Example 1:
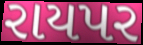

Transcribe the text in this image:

રાયપર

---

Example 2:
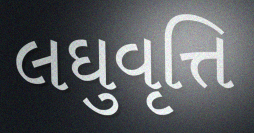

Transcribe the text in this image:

લઘુવૃત્તિ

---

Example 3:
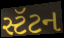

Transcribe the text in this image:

સ્ટૅટન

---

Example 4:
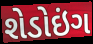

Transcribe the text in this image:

શેડોઇંગ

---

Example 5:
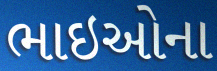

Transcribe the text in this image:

ભાઇઓના